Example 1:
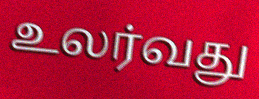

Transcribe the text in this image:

உலர்வது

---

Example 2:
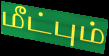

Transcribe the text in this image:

மீட்பும்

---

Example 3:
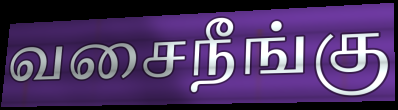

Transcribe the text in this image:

வசைநீங்கு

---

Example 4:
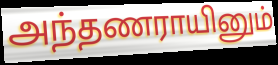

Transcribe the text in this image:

அந்தணராயினும்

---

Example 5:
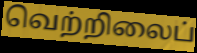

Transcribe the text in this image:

வெற்றிலைப்